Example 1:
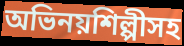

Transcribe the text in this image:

অভিনয়শিল্পীসহ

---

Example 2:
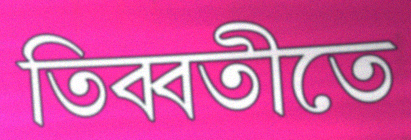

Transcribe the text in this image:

তিব্বতীতে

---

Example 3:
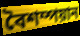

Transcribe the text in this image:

বৈশম্পয়ান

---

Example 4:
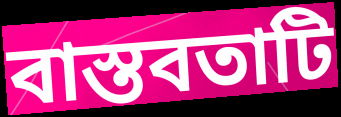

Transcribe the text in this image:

বাস্তবতাটি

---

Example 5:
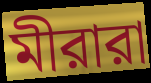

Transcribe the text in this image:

মীরারা